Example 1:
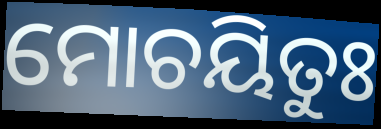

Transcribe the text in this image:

ମୋଚୟିତୁଃ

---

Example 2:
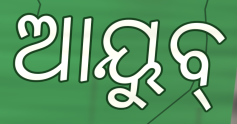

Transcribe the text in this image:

ଆୟୁବ୍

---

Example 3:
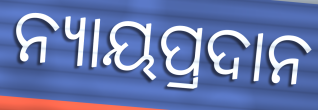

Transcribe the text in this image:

ନ୍ୟାୟପ୍ରଦାନ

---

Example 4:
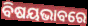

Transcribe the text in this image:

ବିଷୟଭାବରେ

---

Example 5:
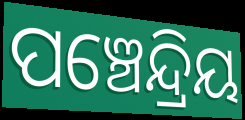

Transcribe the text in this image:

ପଞ୍ଚେନ୍ଦ୍ରିୟ